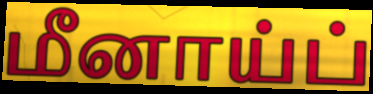
மீனாய்ப்